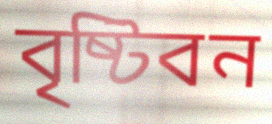
বৃষ্টিবন